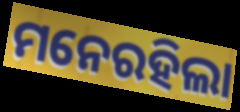
ମନେରହିଲା